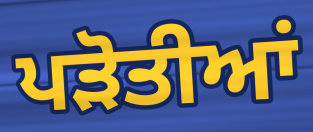
ਪੜੋਤੀਆਂ